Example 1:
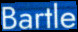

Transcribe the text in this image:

Bartle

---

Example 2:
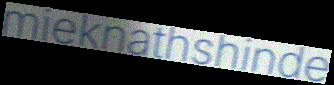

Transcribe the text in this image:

mieknathshinde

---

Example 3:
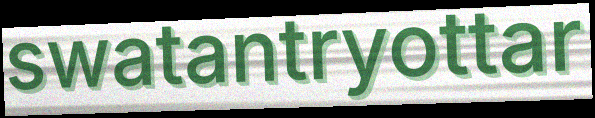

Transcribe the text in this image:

swatantryottar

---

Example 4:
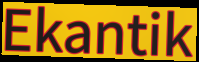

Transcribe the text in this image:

Ekantik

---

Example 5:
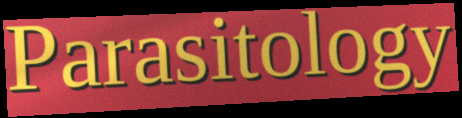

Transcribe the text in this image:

Parasitology